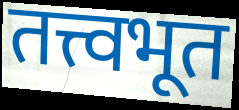
तत्त्वभूत